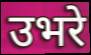
उभरे